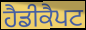
ਹੈਡੀਕੈਪਟ